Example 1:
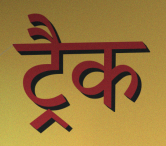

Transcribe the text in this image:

ट्रैक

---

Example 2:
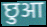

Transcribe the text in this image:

छुआ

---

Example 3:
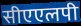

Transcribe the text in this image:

सीएएलपी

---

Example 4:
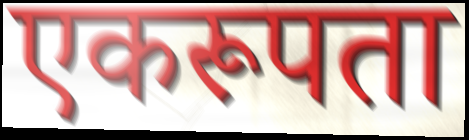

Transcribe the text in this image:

एकरूपता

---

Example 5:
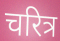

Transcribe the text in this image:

चरित्र